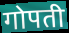
गोपती